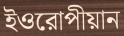
ইওরোপীয়ান